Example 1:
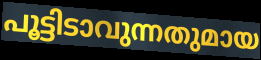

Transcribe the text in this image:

പൂട്ടിടാവുന്നതുമായ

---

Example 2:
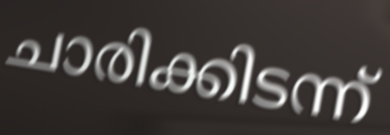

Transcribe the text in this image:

ചാരിക്കിടന്ന്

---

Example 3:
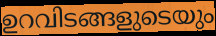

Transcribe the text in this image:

ഉറവിടങ്ങളുടെയും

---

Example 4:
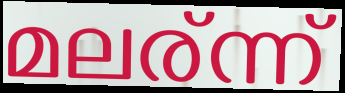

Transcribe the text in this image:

മലര്ന്ന്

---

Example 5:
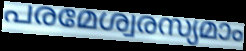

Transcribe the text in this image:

പരമേശ്വരസ്യമാം